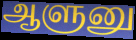
ஆளுனு